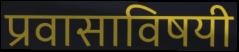
प्रवासाविषयी